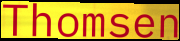
Thomsen